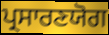
ਪ੍ਰਸਾਰਣਯੋਗ